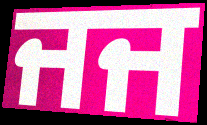
ਜਜ